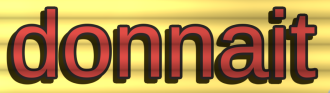
donnait